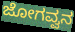
ಜೋಗವ್ವನ